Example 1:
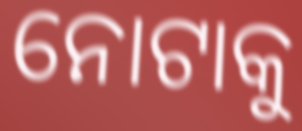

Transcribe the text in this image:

ନୋଟାକୁ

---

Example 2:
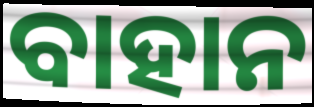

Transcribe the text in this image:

ବାହାନ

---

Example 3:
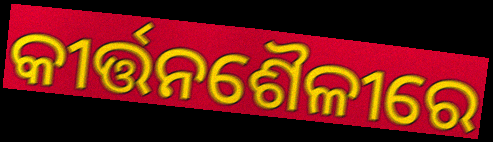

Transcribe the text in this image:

କୀର୍ତ୍ତନଶୈଳୀରେ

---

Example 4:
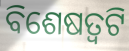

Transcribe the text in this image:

ବିଶେଷତ୍ୱଟି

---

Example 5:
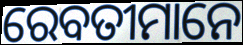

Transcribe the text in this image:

ରେବତୀମାନେ